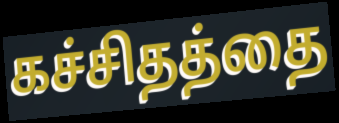
கச்சிதத்தை